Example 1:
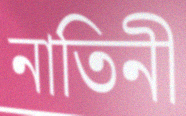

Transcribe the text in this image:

নাতিনী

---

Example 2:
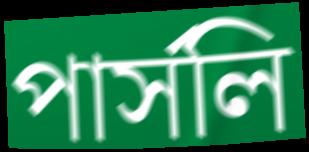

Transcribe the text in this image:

পার্সলি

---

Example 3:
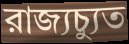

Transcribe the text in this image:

রাজ্যচ্যুত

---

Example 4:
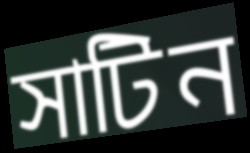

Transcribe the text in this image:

সাটিন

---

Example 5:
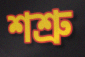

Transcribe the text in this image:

শশ্রু